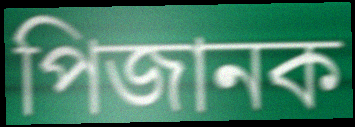
পিজানক